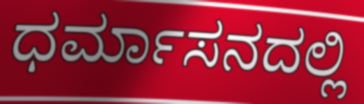
ಧರ್ಮಾಸನದಲ್ಲಿ